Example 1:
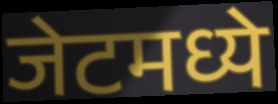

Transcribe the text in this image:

जेटमध्ये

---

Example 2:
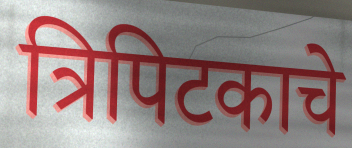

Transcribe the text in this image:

त्रिपिटकाचे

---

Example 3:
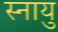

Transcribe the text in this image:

स्नायु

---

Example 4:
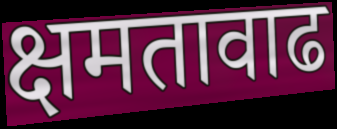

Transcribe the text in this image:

क्षमतावाढ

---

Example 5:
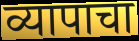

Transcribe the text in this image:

व्यापाचा